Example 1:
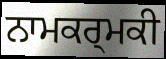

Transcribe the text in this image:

ਨਾਮਕਰ੍ਮਕੀ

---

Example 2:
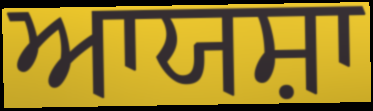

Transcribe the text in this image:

ਆਯਸ਼ਾ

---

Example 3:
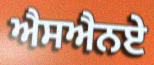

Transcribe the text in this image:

ਐਸਐਨਏ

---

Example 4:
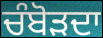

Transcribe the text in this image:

ਚੰਬੋੜਦਾ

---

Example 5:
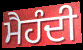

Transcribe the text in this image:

ਮੈਹੰਦੀ